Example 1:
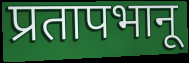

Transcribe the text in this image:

प्रतापभानू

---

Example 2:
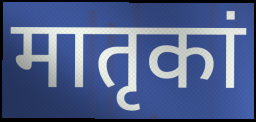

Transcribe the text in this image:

मातृकां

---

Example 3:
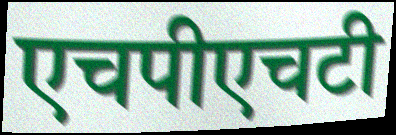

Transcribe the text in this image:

एचपीएचटी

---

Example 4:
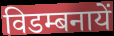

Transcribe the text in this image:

विडम्बनायें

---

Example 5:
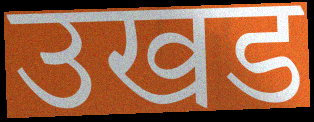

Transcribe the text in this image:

उखड